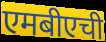
एमबीएची